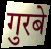
गुरबे